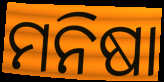
ମନିଷା